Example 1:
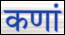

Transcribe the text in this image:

कणां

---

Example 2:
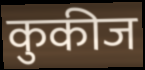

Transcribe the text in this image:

कुकीज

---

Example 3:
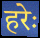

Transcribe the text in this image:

हरेः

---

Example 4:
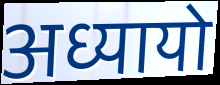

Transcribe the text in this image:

अध्यायो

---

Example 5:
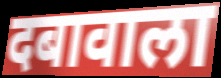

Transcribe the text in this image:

दबावाला